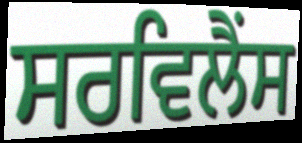
ਸਰਵਿਲੈਂਸ